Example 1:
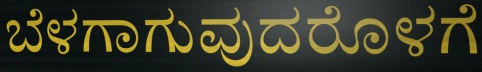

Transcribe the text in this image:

ಬೆಳಗಾಗುವುದರೊಳಗೆ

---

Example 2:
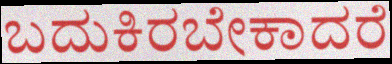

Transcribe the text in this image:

ಬದುಕಿರಬೇಕಾದರೆ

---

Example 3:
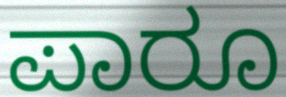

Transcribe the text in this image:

ಪಾರೂ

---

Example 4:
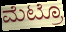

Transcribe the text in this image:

ಮೆಟ್ರೊ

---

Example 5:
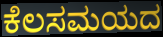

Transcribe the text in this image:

ಕೆಲಸಮಯದ